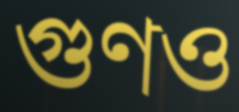
গুণও